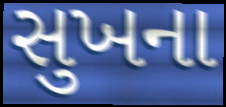
સુખના